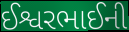
ઈશ્વરભાઈની